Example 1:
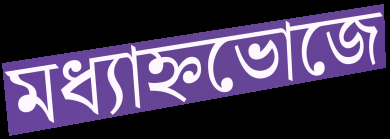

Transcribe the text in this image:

মধ্যাহ্নভোজে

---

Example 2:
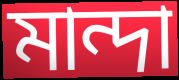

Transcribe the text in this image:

মান্দা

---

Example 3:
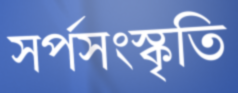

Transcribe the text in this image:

সর্পসংস্কৃতি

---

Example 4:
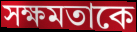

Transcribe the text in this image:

সক্ষমতাকে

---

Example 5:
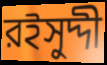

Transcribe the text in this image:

রইসুদ্দী